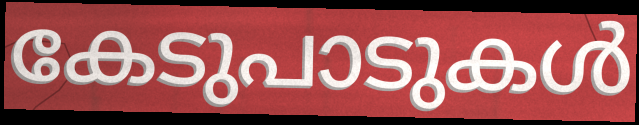
കേടുപാടുകൾ